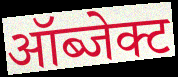
ऑब्जेक्ट